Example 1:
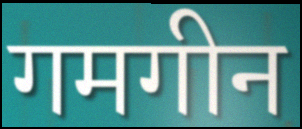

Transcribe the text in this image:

गमगीन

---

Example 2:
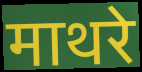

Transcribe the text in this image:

माथरे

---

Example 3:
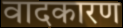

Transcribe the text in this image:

वादकारण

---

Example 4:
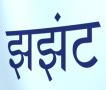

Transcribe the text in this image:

झझंट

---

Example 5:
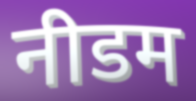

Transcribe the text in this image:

नीडम